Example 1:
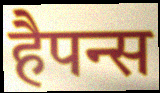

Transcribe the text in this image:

हैपन्स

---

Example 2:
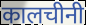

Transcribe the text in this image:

कालचीनी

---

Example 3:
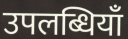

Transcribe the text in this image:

उपलब्धियाँ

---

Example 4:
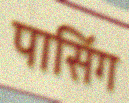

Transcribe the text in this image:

पासिंग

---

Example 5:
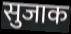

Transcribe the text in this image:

सुजाक